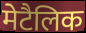
मेटैलिक